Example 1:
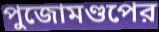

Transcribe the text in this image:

পুজোমণ্ডপের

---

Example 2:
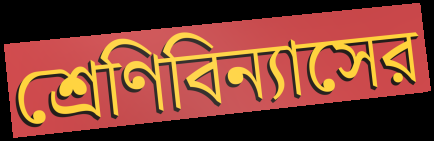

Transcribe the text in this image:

শ্রেণিবিন্যাসের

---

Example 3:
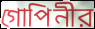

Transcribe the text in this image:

গোপিনীর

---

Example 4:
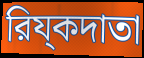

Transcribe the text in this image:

রিয্কদাতা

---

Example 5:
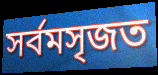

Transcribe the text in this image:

সর্বমসৃজত